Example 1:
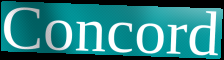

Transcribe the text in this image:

Concord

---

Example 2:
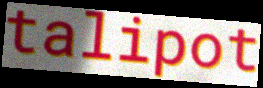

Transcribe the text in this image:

talipot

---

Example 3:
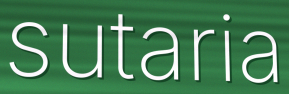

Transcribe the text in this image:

sutaria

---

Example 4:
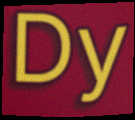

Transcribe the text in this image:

Dy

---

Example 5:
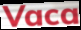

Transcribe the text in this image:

Vaca